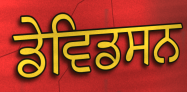
ਡੇਵਿਡਸਨ